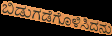
ಬಿಡುಗಡೆಗೊಳಿಸಿದನು